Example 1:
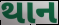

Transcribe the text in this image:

થાન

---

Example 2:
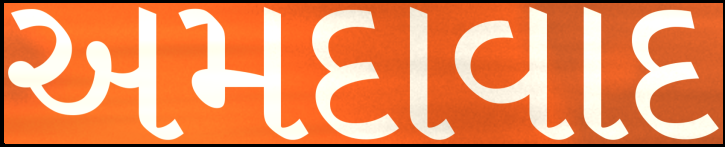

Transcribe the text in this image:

અમદાવાદ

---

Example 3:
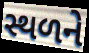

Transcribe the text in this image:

સ્થળને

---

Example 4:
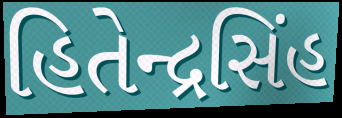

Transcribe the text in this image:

હિતેન્દ્રસિંહ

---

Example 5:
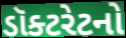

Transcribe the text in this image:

ડૉક્ટરેટનો